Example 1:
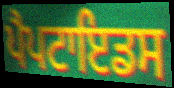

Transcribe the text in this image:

ਪੈਪਟਾਇਡਸ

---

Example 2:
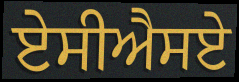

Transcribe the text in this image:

ਏਸੀਐਸਏ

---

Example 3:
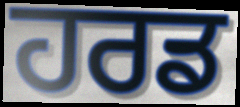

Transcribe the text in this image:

ਹਰਡ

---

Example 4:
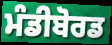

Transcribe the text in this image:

ਮੰਡੀਬੋਰਡ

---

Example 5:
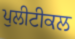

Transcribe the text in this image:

ਪੁਲੀਟੀਕਲ